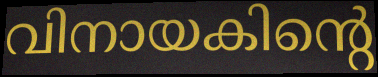
വിനായകിന്റെ